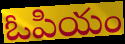
ఓపియం